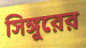
সিঙ্গুরের